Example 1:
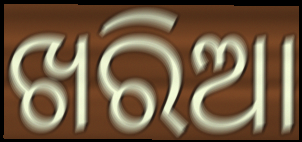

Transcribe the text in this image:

ଖରିଆ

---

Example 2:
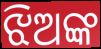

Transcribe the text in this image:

ଝିଅଙ୍କ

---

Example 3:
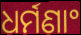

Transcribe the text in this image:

ଧର୍ମଣାଂ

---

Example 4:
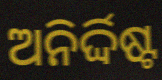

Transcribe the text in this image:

ଅନିର୍ଦ୍ଦିଷ୍ଟ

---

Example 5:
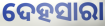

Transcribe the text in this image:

ଦେହସାରା